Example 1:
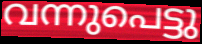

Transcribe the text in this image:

വന്നുപെട്ടു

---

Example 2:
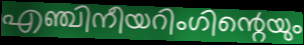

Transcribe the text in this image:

എഞ്ചിനീയറിംഗിന്റെയും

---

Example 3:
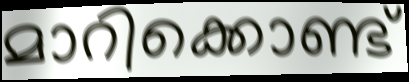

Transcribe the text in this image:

മാറിക്കൊണ്ട്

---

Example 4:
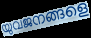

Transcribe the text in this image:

യുവജനങ്ങളെ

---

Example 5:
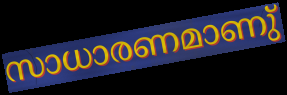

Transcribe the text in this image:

സാധാരണമാണു്